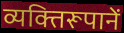
व्यक्तिरूपानें